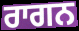
ਰਾਗਨ